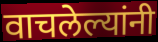
वाचलेल्यांनी